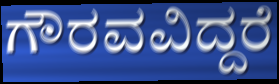
ಗೌರವವಿದ್ದರೆ